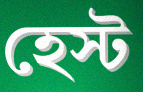
হেস্ট